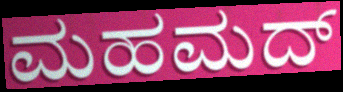
ಮಹಮದ್